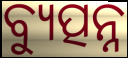
ବ୍ୟୁତ୍ପନ୍ନ